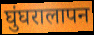
घुंघरालापन